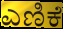
ಎಣಿಕೆ